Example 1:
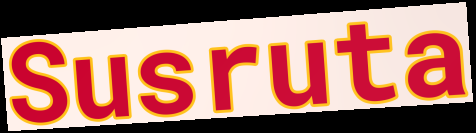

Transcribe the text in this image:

Susruta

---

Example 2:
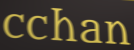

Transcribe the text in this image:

cchan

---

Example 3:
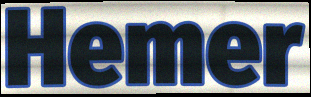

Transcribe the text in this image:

Hemer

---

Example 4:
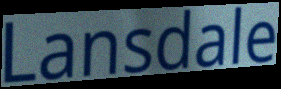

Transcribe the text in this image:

Lansdale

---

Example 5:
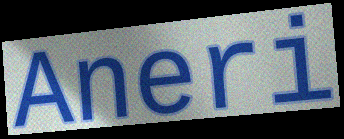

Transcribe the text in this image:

Aneri